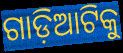
ଗାଡ଼ିଆଟିକୁ